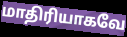
மாதிரியாகவே